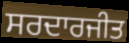
ਸਰਦਾਰਜੀਤ